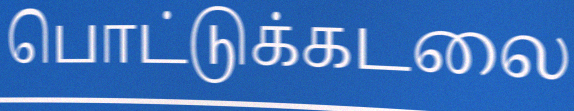
பொட்டுக்கடலை